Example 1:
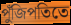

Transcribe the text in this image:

পুঁজিপতিতে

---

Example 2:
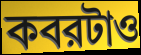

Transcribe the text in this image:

কবরটাও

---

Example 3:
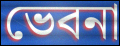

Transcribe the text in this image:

ভেবনা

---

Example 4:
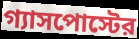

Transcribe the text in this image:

গ্যাসপোস্টের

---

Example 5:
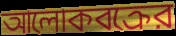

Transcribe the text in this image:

আলোকবক্রের